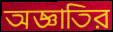
অজ্ঞাতির